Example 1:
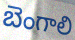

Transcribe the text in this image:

బెంగాలి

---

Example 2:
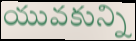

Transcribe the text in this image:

యువకున్ని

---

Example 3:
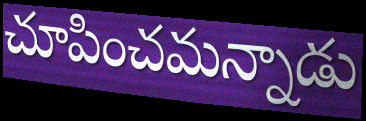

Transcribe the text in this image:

చూపించమన్నాడు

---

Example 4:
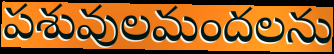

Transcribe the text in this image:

పశువులమందలను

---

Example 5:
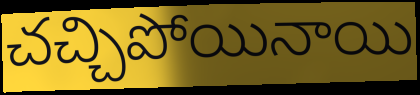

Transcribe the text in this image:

చచ్చిపోయినాయి